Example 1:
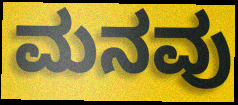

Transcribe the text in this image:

ಮನವು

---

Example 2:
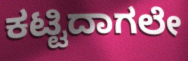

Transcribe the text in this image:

ಕಟ್ಟಿದಾಗಲೇ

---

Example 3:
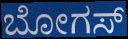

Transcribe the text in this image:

ಬೋಗಸ್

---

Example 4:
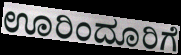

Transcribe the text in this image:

ಊರಿಂದೂರಿಗೆ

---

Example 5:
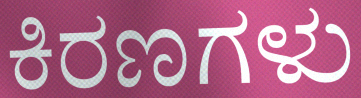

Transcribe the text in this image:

ಕಿರಣಗಳು